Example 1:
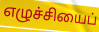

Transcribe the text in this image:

எழுச்சியைப்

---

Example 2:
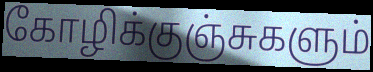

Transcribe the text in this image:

கோழிக்குஞ்சுகளும்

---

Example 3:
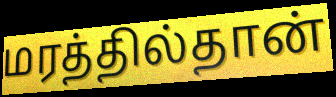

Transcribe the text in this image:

மரத்தில்தான்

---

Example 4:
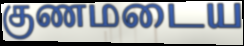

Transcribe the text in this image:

குணமடைய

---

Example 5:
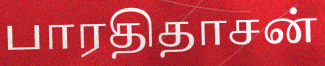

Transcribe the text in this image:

பாரதிதாசன்